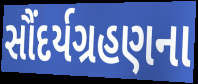
સૌંદર્યગ્રહણના